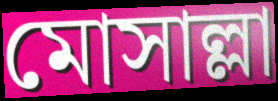
মোসাল্লা